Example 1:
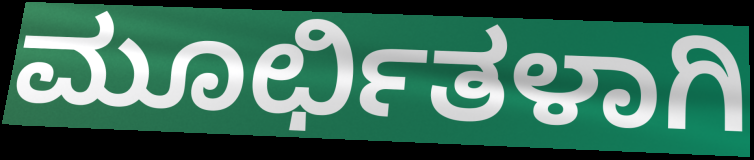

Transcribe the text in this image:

ಮೂರ್ಛಿತಳಾಗಿ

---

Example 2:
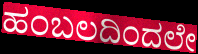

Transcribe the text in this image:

ಹಂಬಲದಿಂದಲೇ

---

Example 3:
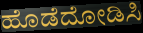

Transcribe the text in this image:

ಹೊಡೆದೋಡಿಸಿ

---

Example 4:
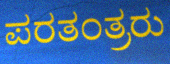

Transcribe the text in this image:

ಪರತಂತ್ರರು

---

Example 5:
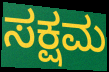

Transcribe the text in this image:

ಸಕ್ಷಮ